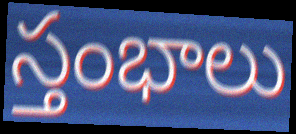
స్తంభాలు